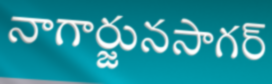
నాగార్జునసాగర్